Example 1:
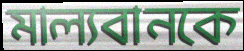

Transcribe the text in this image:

মাল্যবানকে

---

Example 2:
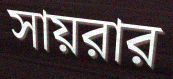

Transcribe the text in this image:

সায়রার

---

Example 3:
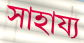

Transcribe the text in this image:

সাহায্য়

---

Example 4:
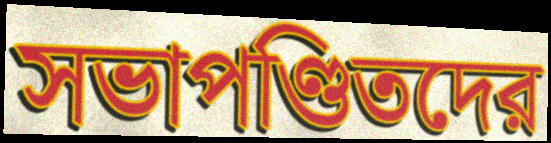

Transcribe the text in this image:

সভাপণ্ডিতদের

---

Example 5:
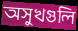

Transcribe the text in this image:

অসুখগুলি